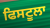
ਫਿਸਟੂਲਾ